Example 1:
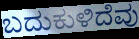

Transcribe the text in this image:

ಬದುಕುಳಿದೆವು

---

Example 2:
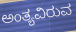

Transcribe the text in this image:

ಅಂತ್ಯವಿರುವ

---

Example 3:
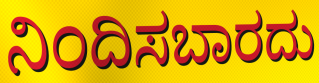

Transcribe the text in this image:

ನಿಂದಿಸಬಾರದು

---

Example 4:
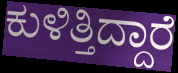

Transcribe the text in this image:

ಕುಳಿತ್ತಿದ್ದಾರೆ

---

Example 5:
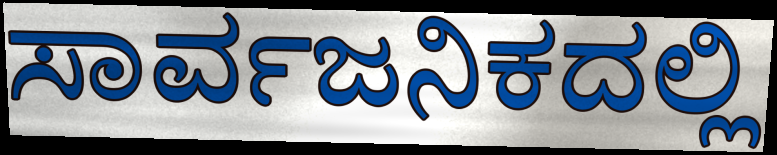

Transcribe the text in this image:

ಸಾರ್ವಜನಿಕದಲ್ಲಿ